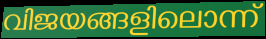
വിജയങ്ങളിലൊന്ന്